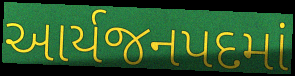
આર્યજનપદમાં